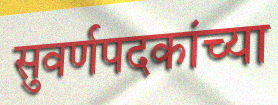
सुवर्णपदकांच्या